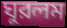
ঘুরলম